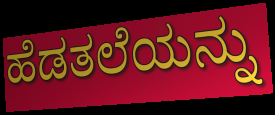
ಹೆಡತಲೆಯನ್ನು